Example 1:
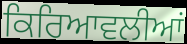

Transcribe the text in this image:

ਕਿਰਿਆਵਲੀਆਂ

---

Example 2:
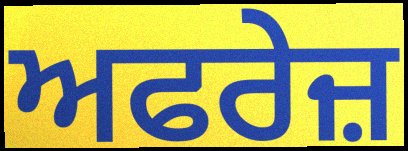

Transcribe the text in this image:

ਅਫਰੇਜ਼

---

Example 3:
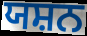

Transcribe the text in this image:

ਯਸ਼ਨ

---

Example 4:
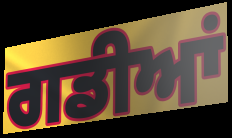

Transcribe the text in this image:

ਗਡੀਆਂ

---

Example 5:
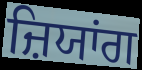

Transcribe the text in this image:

ਜ਼ਿਯਾਂਗ